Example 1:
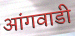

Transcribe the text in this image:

आंगवाडी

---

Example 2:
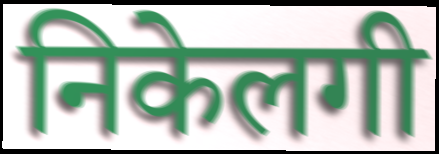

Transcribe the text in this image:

निकेलगी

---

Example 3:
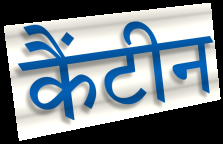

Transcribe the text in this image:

कैंटीन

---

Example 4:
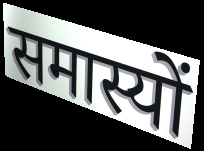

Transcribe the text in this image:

समास्यों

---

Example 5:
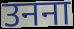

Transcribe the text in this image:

उनना